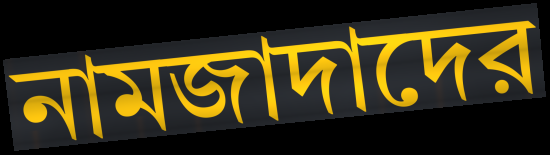
নামজাদাদের